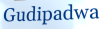
Gudipadwa